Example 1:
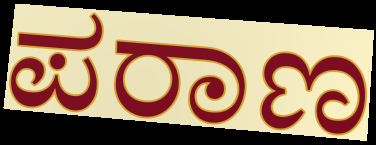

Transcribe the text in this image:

ಪರಾಣ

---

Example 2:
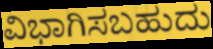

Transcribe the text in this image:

ವಿಭಾಗಿಸಬಹುದು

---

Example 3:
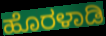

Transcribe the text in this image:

ಹೊರಳಾಡಿ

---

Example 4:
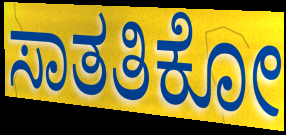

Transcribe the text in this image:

ಸಾತತಿಕೋ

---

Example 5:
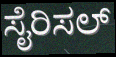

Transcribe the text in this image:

ಸೈರಿಸಲ್